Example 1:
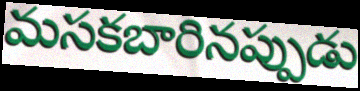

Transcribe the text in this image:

మసకబారినప్పుడు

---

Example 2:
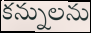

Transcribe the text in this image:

కన్నులను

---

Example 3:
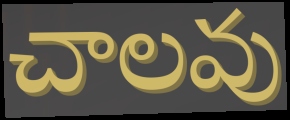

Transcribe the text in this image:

చాలవు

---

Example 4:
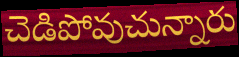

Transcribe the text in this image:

చెడిపోవుచున్నారు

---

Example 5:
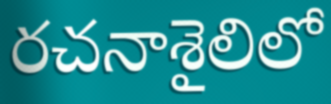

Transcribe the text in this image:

రచనాశైలిలో